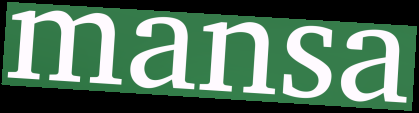
mansa